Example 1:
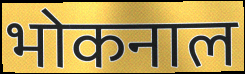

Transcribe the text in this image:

भोकनाल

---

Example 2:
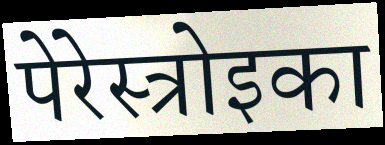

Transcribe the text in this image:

पेरेस्त्रोइका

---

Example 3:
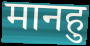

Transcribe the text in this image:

मानहु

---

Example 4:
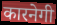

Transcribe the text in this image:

कारनेगी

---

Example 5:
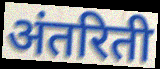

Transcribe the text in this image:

अंतरिती